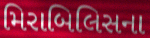
મિરાબિલિસના